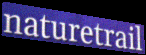
naturetrail